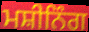
ਮਸ਼ੀਨਿੰਗ